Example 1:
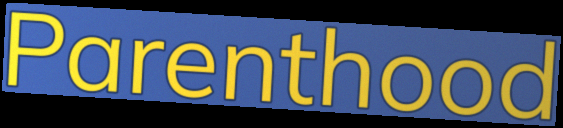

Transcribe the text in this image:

Parenthood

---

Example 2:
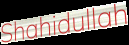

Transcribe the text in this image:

Shahidullah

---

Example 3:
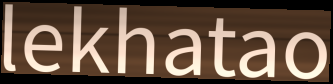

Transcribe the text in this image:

lekhatao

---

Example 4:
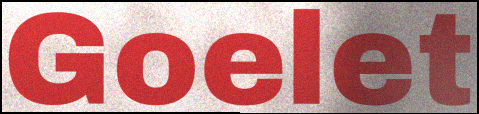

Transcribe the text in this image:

Goelet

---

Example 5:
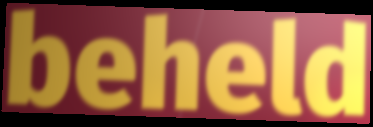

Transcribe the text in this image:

beheld